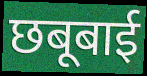
छबूबाई